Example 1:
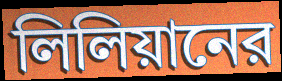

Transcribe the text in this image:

লিলিয়ানের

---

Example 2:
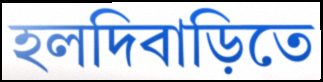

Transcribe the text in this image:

হলদিবাড়িতে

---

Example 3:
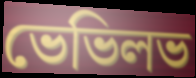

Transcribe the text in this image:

ভেভিলভ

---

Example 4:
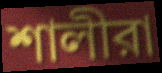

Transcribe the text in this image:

শালীরা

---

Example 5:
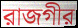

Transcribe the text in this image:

রাজগীর